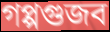
গপ্পগুজব